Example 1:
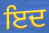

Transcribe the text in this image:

ਇਦ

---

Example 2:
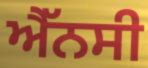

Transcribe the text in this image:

ਐੱਨਸੀ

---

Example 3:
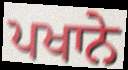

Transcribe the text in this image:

ਪਖਾਨੇ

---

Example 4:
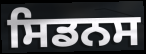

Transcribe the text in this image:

ਸਿਡਨਸ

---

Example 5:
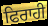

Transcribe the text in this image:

ਫਿਰਾਹੀ